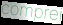
comprei